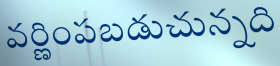
వర్ణింపబడుచున్నది